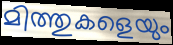
മിത്തുകളെയും